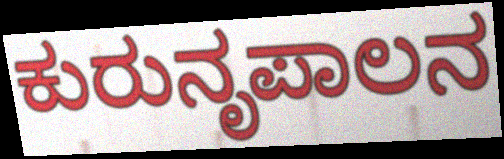
ಕುರುನೃಪಾಲನ